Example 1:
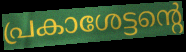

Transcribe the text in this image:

പ്രകാശേട്ടന്റെ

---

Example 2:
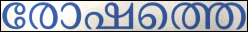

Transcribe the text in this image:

രോഷത്തെ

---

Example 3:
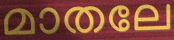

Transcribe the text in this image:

മാതലേ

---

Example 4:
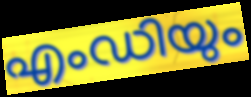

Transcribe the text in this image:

എംഡിയും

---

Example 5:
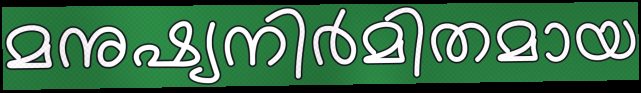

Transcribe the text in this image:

മനുഷ്യനിർമിതമായ